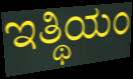
ಇತ್ಥಿಯಂ